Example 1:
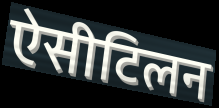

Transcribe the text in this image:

ऐसीटिलन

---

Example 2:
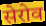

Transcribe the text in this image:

सेरोव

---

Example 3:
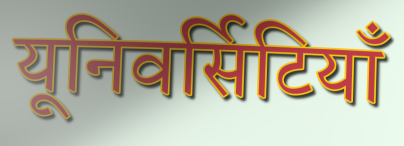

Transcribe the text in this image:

यूनिवर्सिटियाँ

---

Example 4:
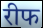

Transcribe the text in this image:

रीफ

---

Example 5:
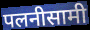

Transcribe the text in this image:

पलनीसामी